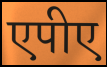
एपीए